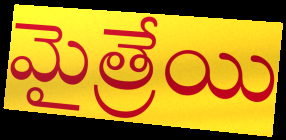
మైత్రేయి